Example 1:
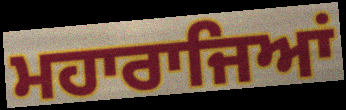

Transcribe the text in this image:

ਮਹਾਰਾਜਿਆਂ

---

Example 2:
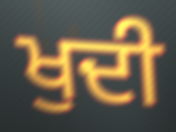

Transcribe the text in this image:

ਖੁਦੀ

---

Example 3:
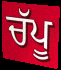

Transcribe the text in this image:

ਚੱਪੂ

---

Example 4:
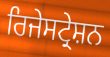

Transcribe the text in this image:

ਰਿਜੇਸਟ੍ਰੇਸ਼ਨ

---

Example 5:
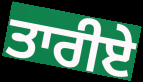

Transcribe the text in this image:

ਤਾਰੀਏ